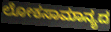
ಲೋಕಸಾಮಾನ್ಯದ